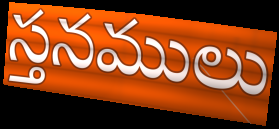
స్తనములు